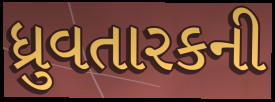
ધ્રુવતારકની